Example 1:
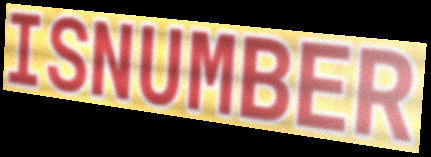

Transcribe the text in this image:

ISNUMBER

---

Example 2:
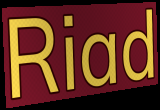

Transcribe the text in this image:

Riad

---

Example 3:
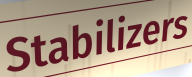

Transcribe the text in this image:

Stabilizers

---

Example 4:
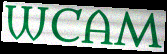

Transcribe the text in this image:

WCAM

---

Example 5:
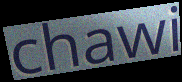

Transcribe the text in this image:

chawi